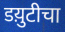
डय़ुटीचा